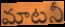
మాటనీ